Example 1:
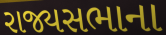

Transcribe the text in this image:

રાજ્યસભાના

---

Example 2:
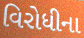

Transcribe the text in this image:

વિરોધીના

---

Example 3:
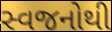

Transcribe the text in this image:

સ્વજનોથી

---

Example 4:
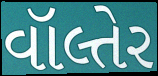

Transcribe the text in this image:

વૉલ્તેર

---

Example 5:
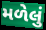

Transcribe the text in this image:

મળેલું